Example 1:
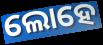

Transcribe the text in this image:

ଲୋହେ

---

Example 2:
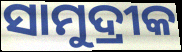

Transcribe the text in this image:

ସାମୁଦ୍ରୀକ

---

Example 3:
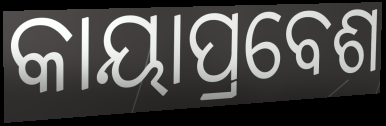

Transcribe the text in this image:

କାୟାପ୍ରବେଶ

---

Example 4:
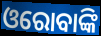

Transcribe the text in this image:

ଓରୋବାଙ୍କି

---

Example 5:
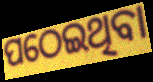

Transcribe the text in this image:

ପଠେଇଥିବା